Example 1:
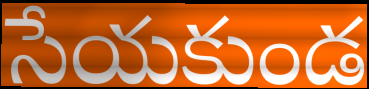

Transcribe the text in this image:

సేయకుండ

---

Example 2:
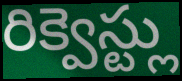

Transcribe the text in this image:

రిక్వెస్ట్లు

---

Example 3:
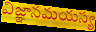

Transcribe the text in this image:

విజ్ఞానమయస్య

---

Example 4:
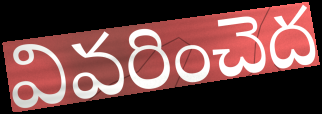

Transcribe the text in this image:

వివరించెద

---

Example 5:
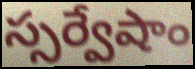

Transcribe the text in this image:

స్సర్వేషాం